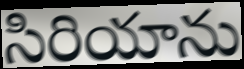
సిరియాను